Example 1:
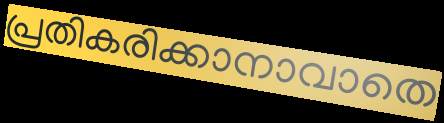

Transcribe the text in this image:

പ്രതികരിക്കാനാവാതെ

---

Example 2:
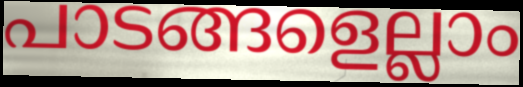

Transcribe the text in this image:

പാടങ്ങളെല്ലാം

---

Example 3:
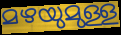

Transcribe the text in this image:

മഴയുമുള്ള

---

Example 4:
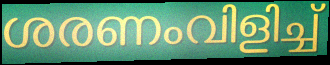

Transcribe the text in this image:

ശരണംവിളിച്ച്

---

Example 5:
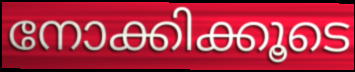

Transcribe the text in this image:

നോക്കിക്കൂടെ